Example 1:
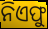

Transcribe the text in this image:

ନିଏଫୁ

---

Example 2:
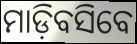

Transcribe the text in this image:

ମାଡ଼ିବସିବେ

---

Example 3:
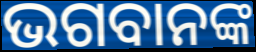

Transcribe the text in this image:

ଭଗବାନଙ୍କ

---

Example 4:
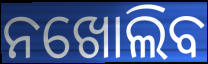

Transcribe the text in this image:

ନଖୋଲିବ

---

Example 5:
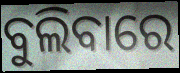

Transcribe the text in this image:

ବୁଲିବାରେ